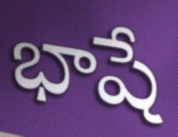
భాషే